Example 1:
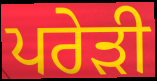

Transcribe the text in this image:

ਪਰੇੜੀ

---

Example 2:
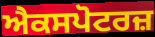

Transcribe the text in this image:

ਐਕਸਪੋਟਰਜ਼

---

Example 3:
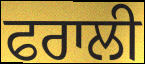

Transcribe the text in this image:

ਫਰਾਲੀ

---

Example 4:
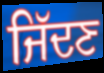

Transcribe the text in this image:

ਜਿੱਦਣ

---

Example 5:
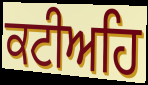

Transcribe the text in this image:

ਕਟੀਅਹਿ